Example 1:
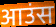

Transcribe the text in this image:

आउंस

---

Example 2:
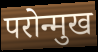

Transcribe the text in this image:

परोन्मुख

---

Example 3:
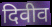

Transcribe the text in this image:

दिवीव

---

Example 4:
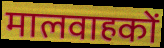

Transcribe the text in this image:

मालवाहकों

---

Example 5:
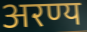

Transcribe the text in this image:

अरण्य